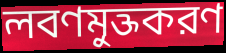
লবণমুক্তকরণ